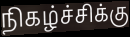
நிகழ்ச்சிக்கு